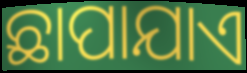
ଛାପାଯାଏ